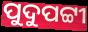
ପୁଦୁପଟ୍ଟୀ